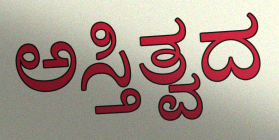
ಅಸ್ತಿತ್ವದ